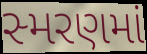
સ્મરણમાં